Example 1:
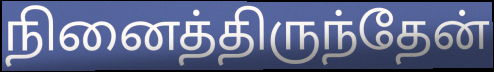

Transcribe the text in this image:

நினைத்திருந்தேன்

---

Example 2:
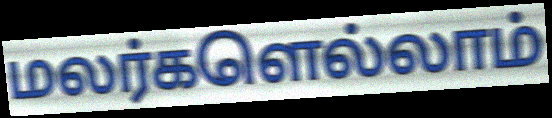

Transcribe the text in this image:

மலர்களெல்லாம்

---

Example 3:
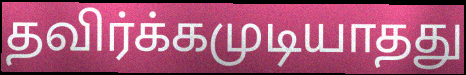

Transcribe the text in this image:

தவிர்க்கமுடியாதது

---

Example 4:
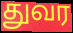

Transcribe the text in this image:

துவர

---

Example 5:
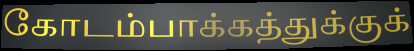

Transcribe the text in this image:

கோடம்பாக்கத்துக்குக்